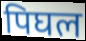
पिघल